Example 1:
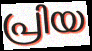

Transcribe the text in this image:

പ്രിയ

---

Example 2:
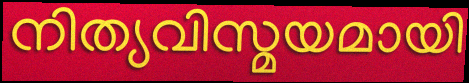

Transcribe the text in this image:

നിത്യവിസ്മയമായി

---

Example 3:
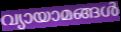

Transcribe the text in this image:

വ്യായാമങ്ങൾ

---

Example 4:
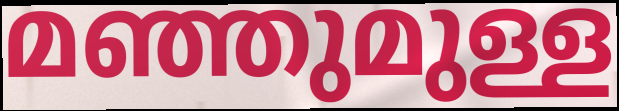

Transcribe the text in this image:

മഞ്ഞുമുള്ള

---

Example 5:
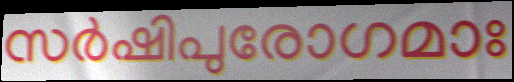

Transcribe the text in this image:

സർഷിപുരോഗമാഃ